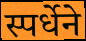
स्पर्धेने